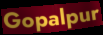
Gopalpur